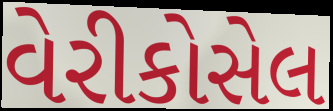
વેરીકોસેલ